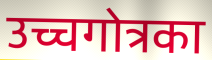
उच्चगोत्रका